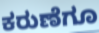
ಕರುಣೆಗೂ